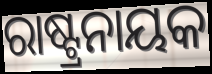
ରାଷ୍ଟ୍ରନାୟକ